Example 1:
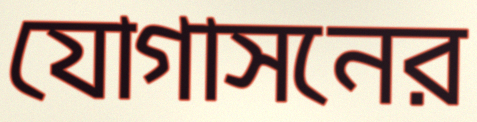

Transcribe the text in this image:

যোগাসনের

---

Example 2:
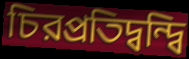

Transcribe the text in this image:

চিরপ্রতিদ্বন্দ্বি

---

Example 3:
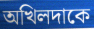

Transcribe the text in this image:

অখিলদাকে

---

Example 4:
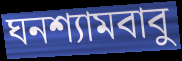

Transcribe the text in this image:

ঘনশ্যামবাবু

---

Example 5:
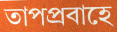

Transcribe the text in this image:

তাপপ্রবাহে